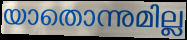
യാതൊന്നുമില്ല